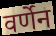
वर्णेन